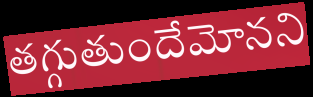
తగ్గుతుందేమోనని